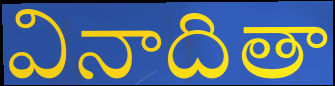
వినాదితా